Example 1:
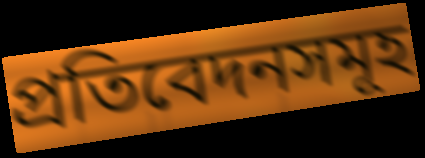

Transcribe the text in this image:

প্ৰতিবেদনসমূহ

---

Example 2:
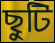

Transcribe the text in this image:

ছুটি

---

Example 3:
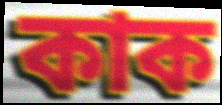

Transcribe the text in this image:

কাক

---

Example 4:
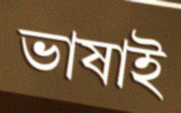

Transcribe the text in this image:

ভাষাই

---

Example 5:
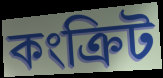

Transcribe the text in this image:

কংক্ৰিট